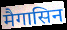
मैगासिन